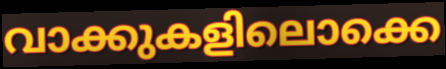
വാക്കുകളിലൊക്കെ